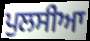
ਪੁਲਸੀਆ